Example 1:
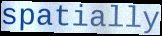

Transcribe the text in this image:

spatially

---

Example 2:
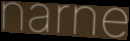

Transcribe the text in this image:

narne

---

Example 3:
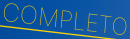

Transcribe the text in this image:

COMPLETO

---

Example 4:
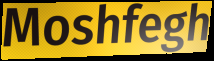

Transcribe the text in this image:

Moshfegh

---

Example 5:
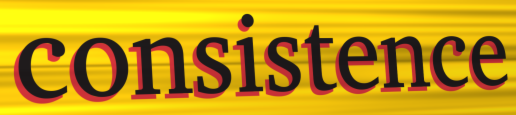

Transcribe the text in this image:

consistence